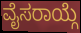
ವೈಸರಾಯ್ಗೆ